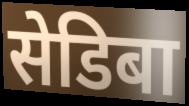
सेडिबा